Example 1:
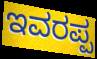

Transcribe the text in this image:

ಇವರಪ್ಪ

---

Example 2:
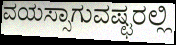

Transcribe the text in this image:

ವಯಸ್ಸಾಗುವಷ್ಟರಲ್ಲಿ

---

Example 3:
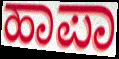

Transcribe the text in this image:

ಹಾಪಾ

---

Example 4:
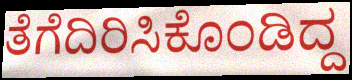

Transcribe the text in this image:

ತೆಗೆದಿರಿಸಿಕೊಂಡಿದ್ದ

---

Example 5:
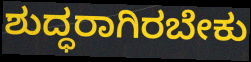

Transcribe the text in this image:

ಶುದ್ಧರಾಗಿರಬೇಕು